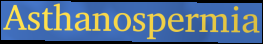
Asthanospermia